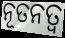
ନୂତନତ୍ୱ